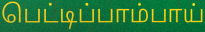
பெட்டிப்பாம்பாய்